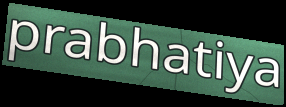
prabhatiya